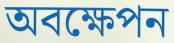
অবক্ষেপন